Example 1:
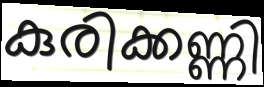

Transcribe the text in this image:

കുരിക്കണ്ണി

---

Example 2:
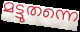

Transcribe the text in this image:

മട്ടുതന്നെ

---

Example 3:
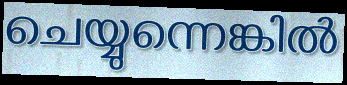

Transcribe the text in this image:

ചെയ്യുന്നെങ്കിൽ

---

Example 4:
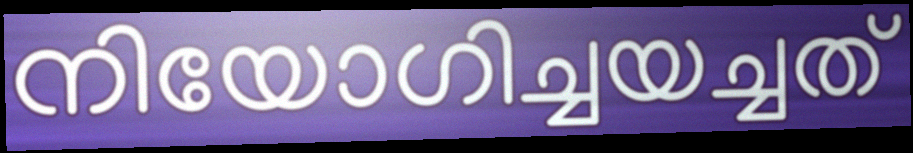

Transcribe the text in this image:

നിയോഗിച്ചയച്ചത്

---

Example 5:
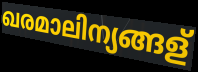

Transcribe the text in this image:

ഖരമാലിന്യങ്ങള്